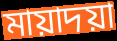
মায়াদয়া